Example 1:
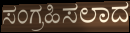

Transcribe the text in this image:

ಸಂಗ್ರಹಿಸಲಾದ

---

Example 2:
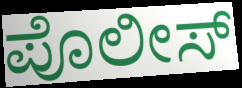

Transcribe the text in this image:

ಪೊಲೀಸ್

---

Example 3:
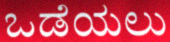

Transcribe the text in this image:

ಒಡೆಯಲು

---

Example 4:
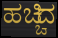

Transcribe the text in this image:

ಹಚ್ಚಿದ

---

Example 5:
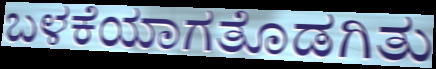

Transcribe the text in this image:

ಬಳಕೆಯಾಗತೊಡಗಿತು